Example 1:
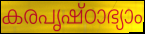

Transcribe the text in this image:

കരപൃഷ്ഠാഭ്യാം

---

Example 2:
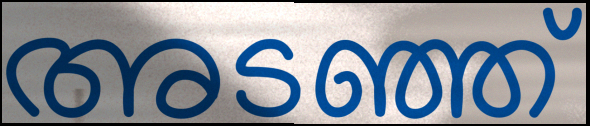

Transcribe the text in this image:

അടഞ്ഞ്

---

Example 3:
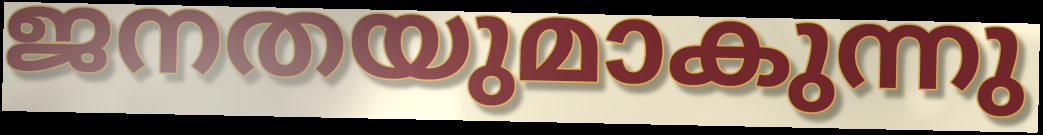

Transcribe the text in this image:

ജനതയുമാകുന്നു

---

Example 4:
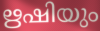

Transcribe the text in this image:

ഋഷിയും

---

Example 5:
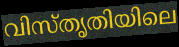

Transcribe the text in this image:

വിസ്തൃതിയിലെ